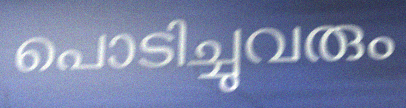
പൊടിച്ചുവരും